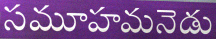
సమూహమనెడు